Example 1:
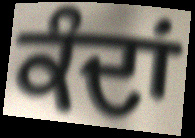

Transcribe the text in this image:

ਕੰਦਾਂ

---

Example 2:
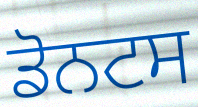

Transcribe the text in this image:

ਡੋਨਟਸ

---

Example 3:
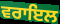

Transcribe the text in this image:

ਵਰਾਇਲ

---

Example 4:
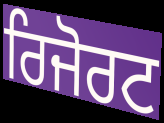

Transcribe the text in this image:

ਰਿਜੋਰਟ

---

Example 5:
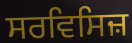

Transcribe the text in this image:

ਸਰਵਿਸਿਜ਼